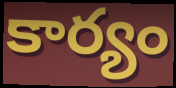
కార్యం